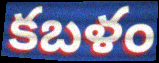
కబళం